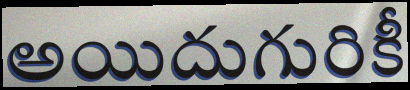
అయిదుగురికీ